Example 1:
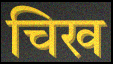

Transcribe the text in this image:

चिख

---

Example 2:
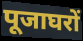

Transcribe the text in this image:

पूजाघरों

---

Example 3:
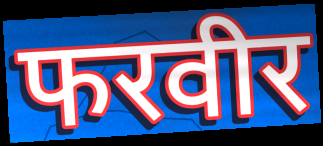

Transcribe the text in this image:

फरवीर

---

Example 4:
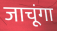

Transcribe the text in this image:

जाचूंगा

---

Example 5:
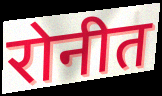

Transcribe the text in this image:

रोनीत